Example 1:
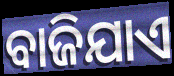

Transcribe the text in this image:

ବାଜିଯାଏ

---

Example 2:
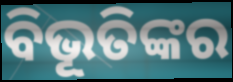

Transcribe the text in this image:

ବିଭୂତିଙ୍କର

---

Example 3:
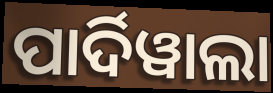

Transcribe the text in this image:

ପାର୍ଦିୱାଲା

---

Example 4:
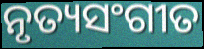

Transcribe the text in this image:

ନୃତ୍ୟସଂଗୀତ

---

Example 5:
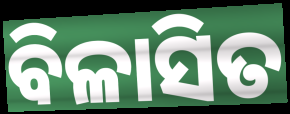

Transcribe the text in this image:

ବିଳାସିତ